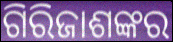
ଗିରିଜାଶଙ୍କର